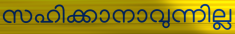
സഹിക്കാനാവുന്നില്ല